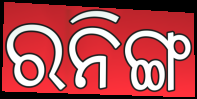
ରନିଙ୍ଗ